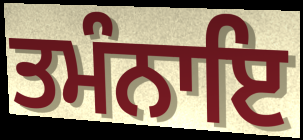
ਤਮੰਨਾਇ